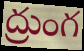
ద్రుంగ